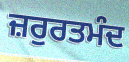
ਜ਼ਰੁਰਤਮੰਦ